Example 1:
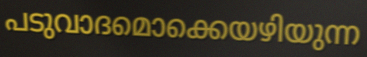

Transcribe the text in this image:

പടുവാദമൊക്കെയഴിയുന്ന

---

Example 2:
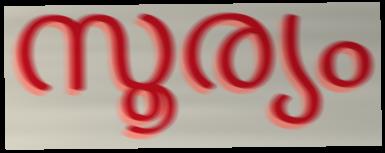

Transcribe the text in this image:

സൂര്യം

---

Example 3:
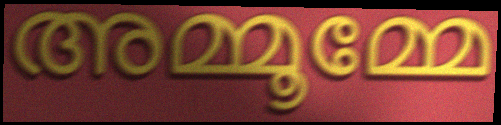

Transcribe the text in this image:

അമ്മൂമ്മേ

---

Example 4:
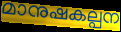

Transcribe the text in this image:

മാനുഷകല്പന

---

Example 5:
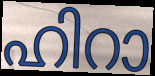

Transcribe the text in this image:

ഹിറാ